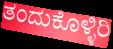
ತಂದುಕೊಳ್ಳಿರಿ